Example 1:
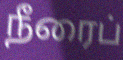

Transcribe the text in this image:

நீரைப்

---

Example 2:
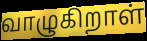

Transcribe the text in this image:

வாழுகிறாள்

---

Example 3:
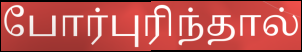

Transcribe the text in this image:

போர்புரிந்தால்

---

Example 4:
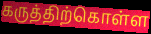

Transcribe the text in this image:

கருத்திற்கொள்ள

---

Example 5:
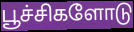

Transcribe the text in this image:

பூச்சிகளோடு